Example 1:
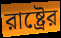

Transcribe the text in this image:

রাষ্ট্রের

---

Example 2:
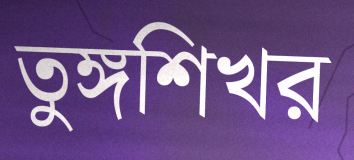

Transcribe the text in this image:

তুঙ্গশিখর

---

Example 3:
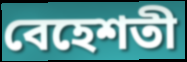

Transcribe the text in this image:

বেহেশতী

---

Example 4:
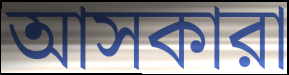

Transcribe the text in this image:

আসকারা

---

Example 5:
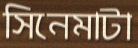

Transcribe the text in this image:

সিনেমাটা